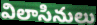
విలాసినులు